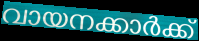
വായനക്കാർക്ക്